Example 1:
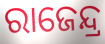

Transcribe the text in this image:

ରାଜେନ୍ଦ୍ର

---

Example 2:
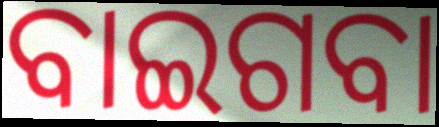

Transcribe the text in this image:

ବାଇଗବା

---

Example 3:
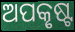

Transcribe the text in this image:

ଅପକୃଷ୍ଟ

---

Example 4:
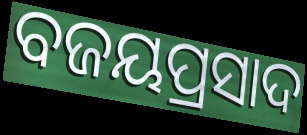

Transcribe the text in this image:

ବଜୟପ୍ରସାଦ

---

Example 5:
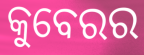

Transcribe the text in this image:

କୁବେରର